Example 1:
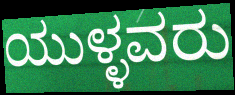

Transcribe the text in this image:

ಯುಳ್ಳವರು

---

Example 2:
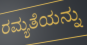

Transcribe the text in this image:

ರಮ್ಯತೆಯನ್ನು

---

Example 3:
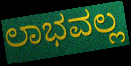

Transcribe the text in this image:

ಲಾಭವಲ್ಲ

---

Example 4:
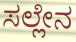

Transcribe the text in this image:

ಸಲ್ಲೇನ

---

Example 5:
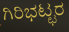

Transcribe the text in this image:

ಗಿರಿಭಟ್ಟರ